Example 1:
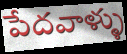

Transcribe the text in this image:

పేదవాళ్ళు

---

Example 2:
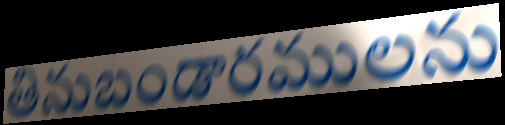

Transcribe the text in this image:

తినుబండారములను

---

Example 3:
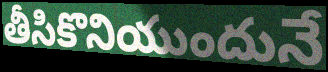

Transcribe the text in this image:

తీసికొనియుందునే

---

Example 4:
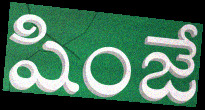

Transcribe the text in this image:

షింజే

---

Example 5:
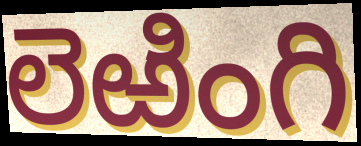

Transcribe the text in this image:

లెఱింగి